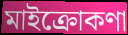
মাইক্রোকণা